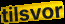
tilsvor